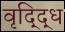
वृद्द्धि